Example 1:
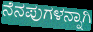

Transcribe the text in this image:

ನೆನಪುಗಳನ್ನಾಗಿ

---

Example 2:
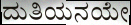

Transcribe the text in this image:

ದುತಿಯನಯೇ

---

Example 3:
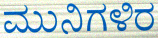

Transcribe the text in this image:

ಮುನಿಗಳಿರ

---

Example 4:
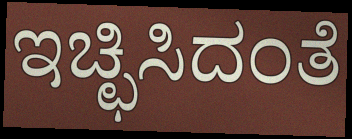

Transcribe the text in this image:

ಇಚ್ಛಿಸಿದಂತೆ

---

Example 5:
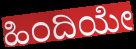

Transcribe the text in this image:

ಹಿಂದಿಯೇ